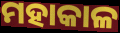
ମହାକାଳ